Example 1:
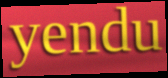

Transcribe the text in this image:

yendu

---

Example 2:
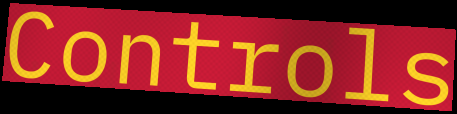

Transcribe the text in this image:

Controls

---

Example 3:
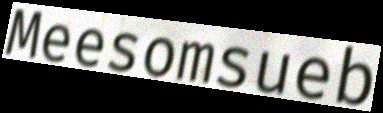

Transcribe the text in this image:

Meesomsueb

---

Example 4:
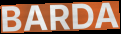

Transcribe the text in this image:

BARDA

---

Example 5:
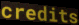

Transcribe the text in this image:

credits